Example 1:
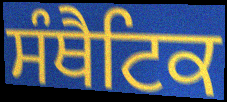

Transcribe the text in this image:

ਸੰਥੈਟਿਕ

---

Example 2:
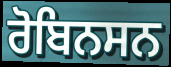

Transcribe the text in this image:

ਰੋਬਿਨਸਨ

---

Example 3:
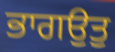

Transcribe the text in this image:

ਭਾਗਉਤੁ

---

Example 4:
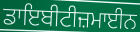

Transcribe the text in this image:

ਡਾਇਬੀਟੀਜ਼ਮਾਈਨ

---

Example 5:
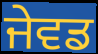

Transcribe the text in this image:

ਜੇਵਡ